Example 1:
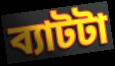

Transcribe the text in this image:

ব্যাটটা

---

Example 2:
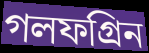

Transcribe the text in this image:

গলফগ্রিন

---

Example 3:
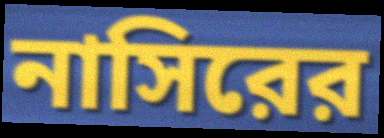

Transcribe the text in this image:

নাসিরের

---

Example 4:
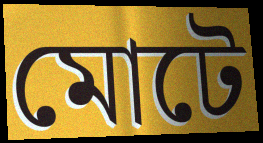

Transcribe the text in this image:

মোটে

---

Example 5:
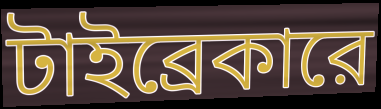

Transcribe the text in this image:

টাইব্রেকারে